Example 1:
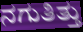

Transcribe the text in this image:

ನಗುತಿತ್ತು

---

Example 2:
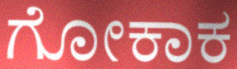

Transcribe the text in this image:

ಗೋಕಾಕ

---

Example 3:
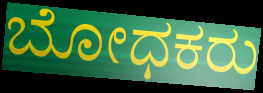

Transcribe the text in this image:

ಬೋಧಕರು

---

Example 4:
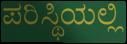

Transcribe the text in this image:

ಪರಿಸ್ಥಿಯಲ್ಲಿ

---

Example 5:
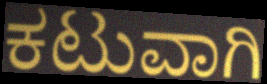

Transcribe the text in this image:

ಕಟುವಾಗಿ